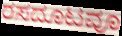
ರಸದೂಟವೂ